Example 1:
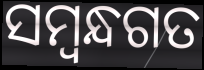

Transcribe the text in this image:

ସମ୍ବନ୍ଧଗତ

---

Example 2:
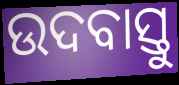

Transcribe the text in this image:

ଉଦବାସ୍ତୁ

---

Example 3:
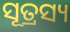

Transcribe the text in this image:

ସୂତ୍ରସ୍ୟ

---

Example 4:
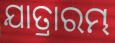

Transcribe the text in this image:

ଯାତ୍ରାରମ୍ଭ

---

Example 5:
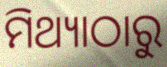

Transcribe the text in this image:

ମିଥ୍ୟାଠାରୁ